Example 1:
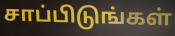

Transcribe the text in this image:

சாப்பிடுங்கள்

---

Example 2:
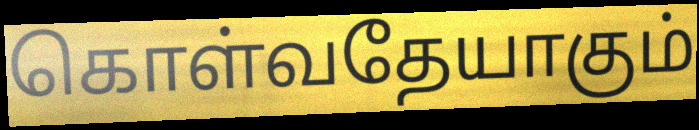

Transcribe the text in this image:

கொள்வதேயாகும்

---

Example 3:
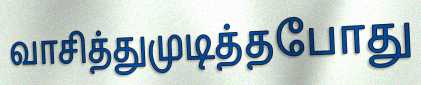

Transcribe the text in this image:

வாசித்துமுடித்தபோது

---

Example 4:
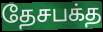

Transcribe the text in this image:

தேசபக்த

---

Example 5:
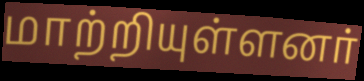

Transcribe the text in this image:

மாற்றியுள்ளனர்